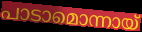
പാടാമൊന്നായ്